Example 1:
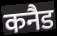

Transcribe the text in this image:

कनैड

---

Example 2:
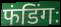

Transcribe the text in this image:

फंडिंगः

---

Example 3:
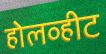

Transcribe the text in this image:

होलव्हीट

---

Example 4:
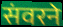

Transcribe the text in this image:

संवरने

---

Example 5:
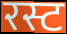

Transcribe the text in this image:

रस्ट